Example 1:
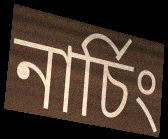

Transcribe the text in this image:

নাৰ্চিং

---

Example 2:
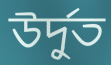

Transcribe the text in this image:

উৰ্দুত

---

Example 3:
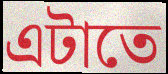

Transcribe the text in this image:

এটাতে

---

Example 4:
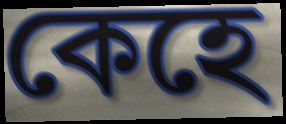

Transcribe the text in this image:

কেহে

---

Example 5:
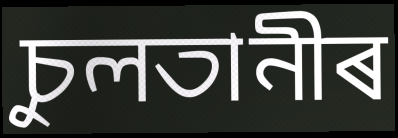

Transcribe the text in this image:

চুলতানীৰ